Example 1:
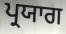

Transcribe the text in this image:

ਪ੍ਰਯਾਗ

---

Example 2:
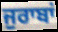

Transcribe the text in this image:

ਜੁਰਾਬਾਂ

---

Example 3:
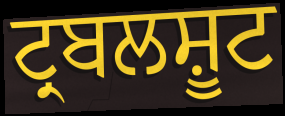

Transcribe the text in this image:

ਟ੍ਰਬਲਸ਼ੂਟ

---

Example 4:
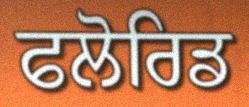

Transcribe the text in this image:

ਫਲੋਰਿਡ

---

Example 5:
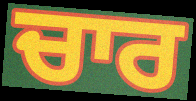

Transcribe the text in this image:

ਚਾਰ